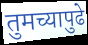
तुमच्यापुढे